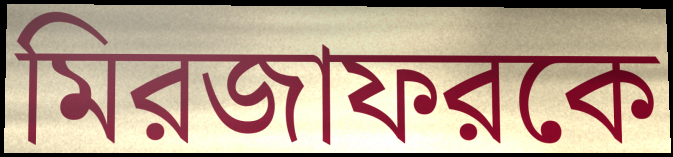
মিরজাফরকে